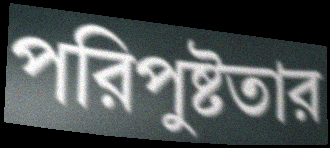
পরিপুষ্টতার